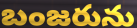
బంజరును